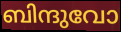
ബിന്ദുവോ